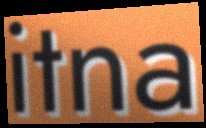
itna